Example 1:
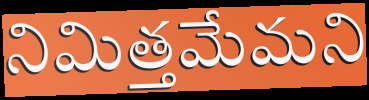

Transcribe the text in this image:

నిమిత్తమేమని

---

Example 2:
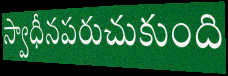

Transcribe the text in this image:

స్వాధీనపరుచుకుంది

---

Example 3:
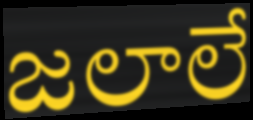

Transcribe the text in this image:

జలాలే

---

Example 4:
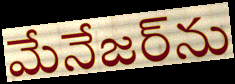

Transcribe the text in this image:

మేనేజర్‌ను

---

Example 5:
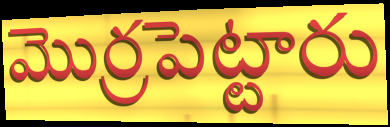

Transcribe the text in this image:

మొర్రపెట్టారు